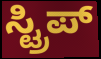
ಸ್ಟ್ರಿಪ್